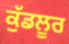
ਕੁੱਡਲੂਰ